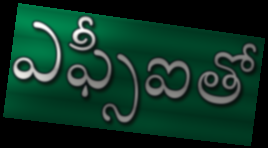
ఎఫ్సీఐతో